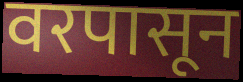
वरपासून